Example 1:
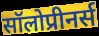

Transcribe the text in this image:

सॉलोप्रीनर्स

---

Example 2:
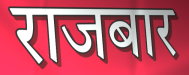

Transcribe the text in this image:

राजबार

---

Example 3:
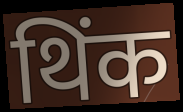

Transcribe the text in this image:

थिंक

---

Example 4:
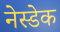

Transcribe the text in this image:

नेस्डेक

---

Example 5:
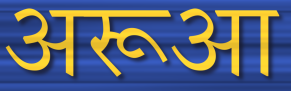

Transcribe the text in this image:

अरूआ